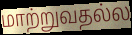
மாற்றுவதல்ல